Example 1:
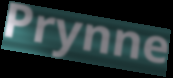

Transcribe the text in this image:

Prynne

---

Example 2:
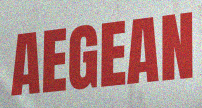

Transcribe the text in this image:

AEGEAN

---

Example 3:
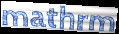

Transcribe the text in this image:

mathrm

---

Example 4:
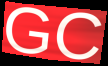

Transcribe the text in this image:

GC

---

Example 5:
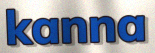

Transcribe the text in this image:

kanna